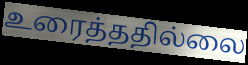
உரைத்ததில்லை